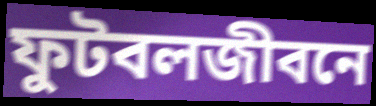
ফুটবলজীবনে